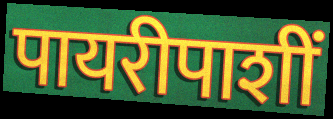
पायरीपाशीं